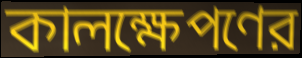
কালক্ষেপণের